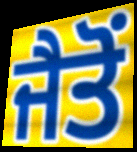
ਜੈਤੋਂ